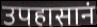
उपहासानं